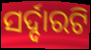
ସର୍ଦ୍ଦାରଟି